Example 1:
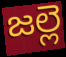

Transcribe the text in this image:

జల్లె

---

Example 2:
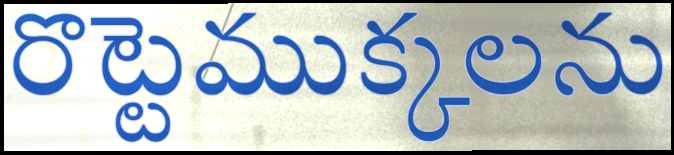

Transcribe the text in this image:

రొట్టెముక్కలను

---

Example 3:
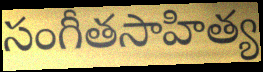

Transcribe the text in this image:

సంగీతసాహిత్య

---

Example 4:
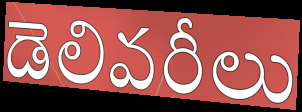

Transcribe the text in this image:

డెలివరీలు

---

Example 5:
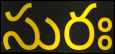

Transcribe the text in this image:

సురః